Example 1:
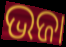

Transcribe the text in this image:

ଭଜା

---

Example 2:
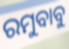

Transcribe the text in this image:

ରମୁବାବୁ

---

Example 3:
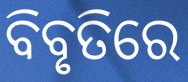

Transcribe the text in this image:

ବିବୃତିରେ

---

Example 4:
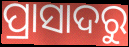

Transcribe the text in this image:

ପ୍ରାସାଦରୁ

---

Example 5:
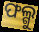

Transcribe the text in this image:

ଫଲ୍ଗୁ